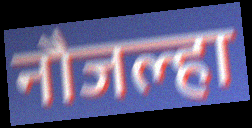
नौजल्हा